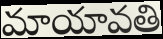
మాయావతి